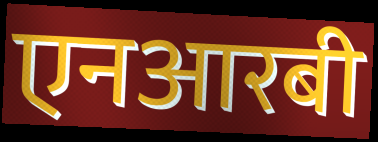
एनआरबी